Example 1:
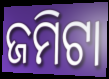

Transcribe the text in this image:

ଜମିଟା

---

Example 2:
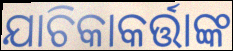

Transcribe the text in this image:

ଯାଚିକାକର୍ତ୍ତାଙ୍କ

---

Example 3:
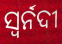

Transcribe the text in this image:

ସ୍ୱର୍ନଦୀ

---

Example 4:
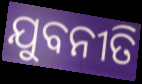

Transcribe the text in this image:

ଯୁବନୀତି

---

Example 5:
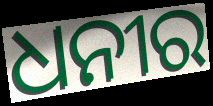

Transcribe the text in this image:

ଧନୀର